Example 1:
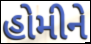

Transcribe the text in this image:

હોમીને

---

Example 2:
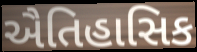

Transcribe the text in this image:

ઐતિહાસિક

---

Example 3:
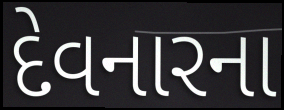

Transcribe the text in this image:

દેવનારના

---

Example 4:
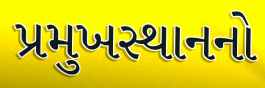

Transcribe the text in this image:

પ્રમુખસ્થાનનો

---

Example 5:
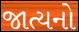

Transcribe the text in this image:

જાત્યનો